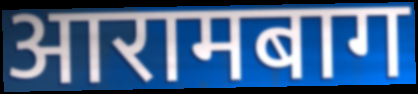
आरामबाग